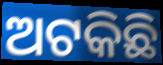
ଅଟକିଛି